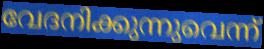
വേദനിക്കുന്നുവെന്ന്